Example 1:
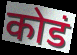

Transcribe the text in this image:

कोडं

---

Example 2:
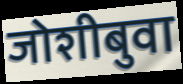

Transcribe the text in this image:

जोशीबुवा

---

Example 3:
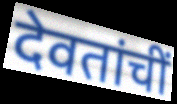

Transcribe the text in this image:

देवतांचीं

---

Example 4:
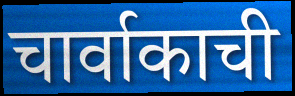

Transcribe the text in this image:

चार्वाकाची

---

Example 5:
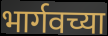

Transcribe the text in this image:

भार्गवच्या